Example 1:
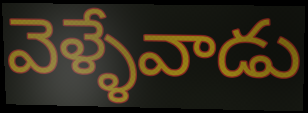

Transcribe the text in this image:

వెళ్ళేవాడు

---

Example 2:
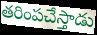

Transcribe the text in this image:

తరింపచేస్తాడు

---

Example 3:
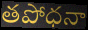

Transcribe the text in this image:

తపోధనా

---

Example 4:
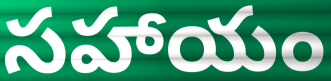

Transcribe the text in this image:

సహాయం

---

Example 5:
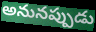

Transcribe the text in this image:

అనునప్పుడు